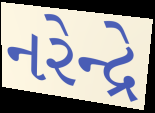
નરેન્દ્રે